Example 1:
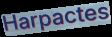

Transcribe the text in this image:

Harpactes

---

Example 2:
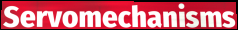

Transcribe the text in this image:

Servomechanisms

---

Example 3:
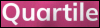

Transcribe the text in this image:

Quartile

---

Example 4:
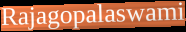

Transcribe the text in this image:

Rajagopalaswami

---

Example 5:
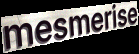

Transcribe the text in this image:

mesmerise